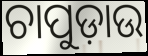
ଚାପୁଡ଼ାଉ